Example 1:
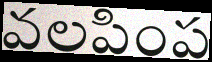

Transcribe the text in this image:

వలపింప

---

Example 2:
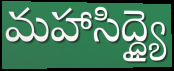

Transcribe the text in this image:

మహాసిద్ధ్యై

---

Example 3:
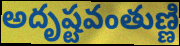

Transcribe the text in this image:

అదృష్టవంతుణ్ణి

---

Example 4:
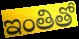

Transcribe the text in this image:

ఇంతితో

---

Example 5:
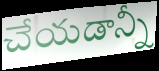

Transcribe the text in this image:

చేయడాన్నీ